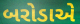
બરોડાએ